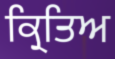
ਕ੍ਰਿਤਿਅ